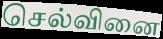
செல்வினை